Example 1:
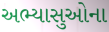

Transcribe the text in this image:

અભ્યાસુઓના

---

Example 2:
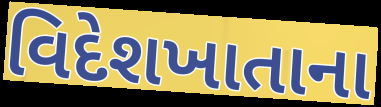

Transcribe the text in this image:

વિદેશખાતાના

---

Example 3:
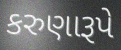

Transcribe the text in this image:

કરુણારૂપે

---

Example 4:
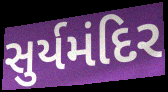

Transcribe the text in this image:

સુર્યમંદિર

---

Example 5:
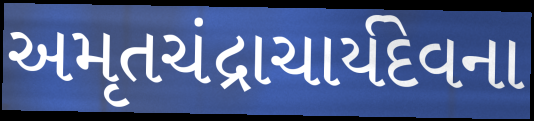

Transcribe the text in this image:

અમૃતચંદ્રાચાર્યદેવના